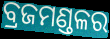
ବ୍ରଜମଣ୍ଡଳର